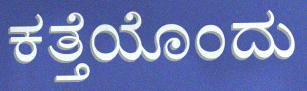
ಕತ್ತೆಯೊಂದು